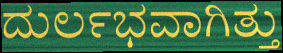
ದುರ್ಲಭವಾಗಿತ್ತು